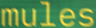
mules